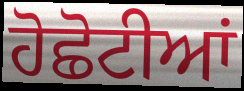
ਹੋਛੋਟੀਆਂ